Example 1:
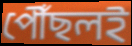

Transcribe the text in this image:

পৌঁছলই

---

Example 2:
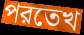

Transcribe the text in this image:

পরতেখ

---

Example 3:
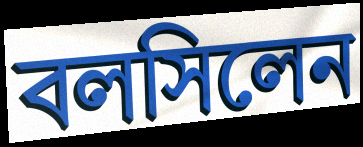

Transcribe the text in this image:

বলসিলেন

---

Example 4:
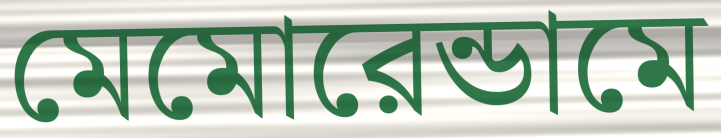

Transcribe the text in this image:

মেমোরেন্ডামে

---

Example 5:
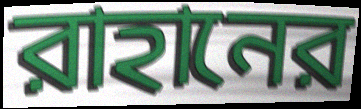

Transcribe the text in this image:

রাহানের